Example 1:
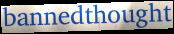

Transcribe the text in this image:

bannedthought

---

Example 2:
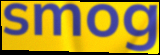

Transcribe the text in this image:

smog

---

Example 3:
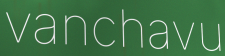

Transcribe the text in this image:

vanchavu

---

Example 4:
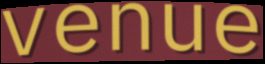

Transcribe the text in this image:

venue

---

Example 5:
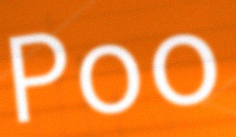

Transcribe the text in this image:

Poo